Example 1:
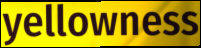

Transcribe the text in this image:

yellowness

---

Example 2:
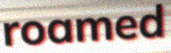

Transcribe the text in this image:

roamed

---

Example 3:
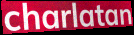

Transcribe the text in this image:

charlatan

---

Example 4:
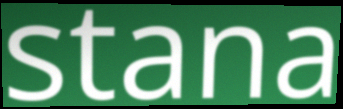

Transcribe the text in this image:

stana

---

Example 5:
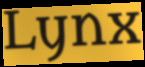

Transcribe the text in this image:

Lynx